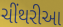
ચીંથરીઆ